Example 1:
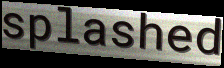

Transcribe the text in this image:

splashed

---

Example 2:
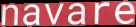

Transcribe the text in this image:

navare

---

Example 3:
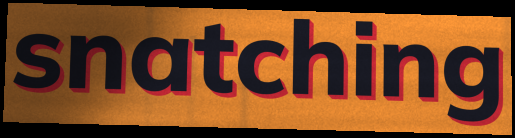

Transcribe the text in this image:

snatching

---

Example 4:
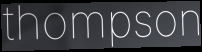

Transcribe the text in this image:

thompson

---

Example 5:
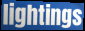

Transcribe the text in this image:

lightings